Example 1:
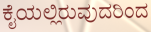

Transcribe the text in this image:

ಕೈಯಲ್ಲಿರುವುದರಿಂದ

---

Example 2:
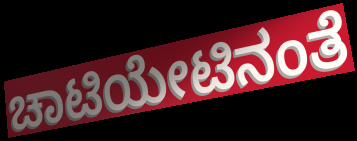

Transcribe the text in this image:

ಚಾಟಿಯೇಟಿನಂತೆ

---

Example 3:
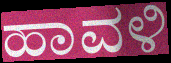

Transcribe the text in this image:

ಹಾವಳಿ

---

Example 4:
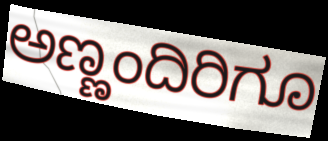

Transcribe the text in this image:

ಅಣ್ಣಂದಿರಿಗೂ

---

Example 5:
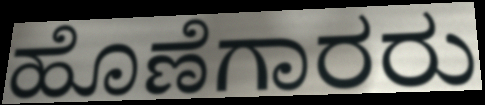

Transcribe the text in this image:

ಹೊಣೆಗಾರರು